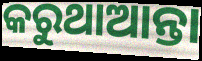
କରୁଥାଆନ୍ତା